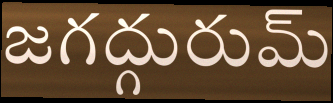
జగద్గురుమ్